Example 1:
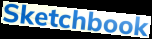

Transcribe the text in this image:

Sketchbook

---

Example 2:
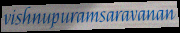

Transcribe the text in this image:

vishnupuramsaravanan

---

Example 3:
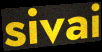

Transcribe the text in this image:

sivai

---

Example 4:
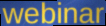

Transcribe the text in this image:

webinar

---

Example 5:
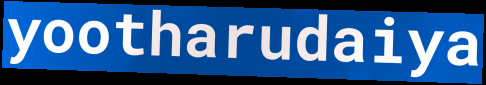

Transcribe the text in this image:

yootharudaiya